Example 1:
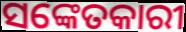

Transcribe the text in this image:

ସଙ୍କେତକାରୀ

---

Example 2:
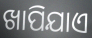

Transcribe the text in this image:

ଖାପିଯାଏ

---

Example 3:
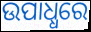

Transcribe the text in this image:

ଉପାଧ୍ଧରେ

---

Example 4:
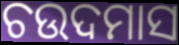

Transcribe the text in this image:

ଚଉଦମାସ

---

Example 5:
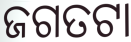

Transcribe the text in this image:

ଜଗତଟା